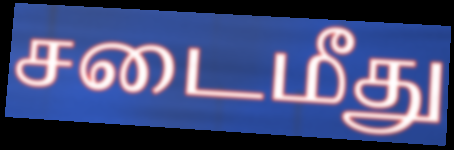
சடைமீது